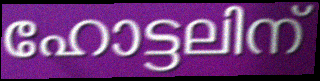
ഹോട്ടലിന്